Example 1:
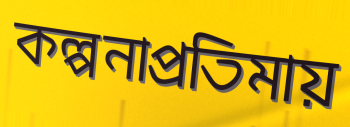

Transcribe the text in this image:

কল্পনাপ্রতিমায়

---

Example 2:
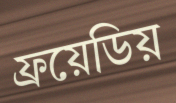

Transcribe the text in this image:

ফ্রয়েডিয়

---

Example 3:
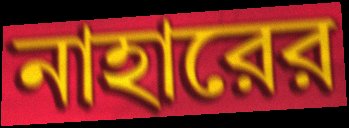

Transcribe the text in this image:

নাহারের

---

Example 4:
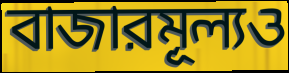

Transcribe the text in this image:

বাজারমূল্যও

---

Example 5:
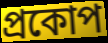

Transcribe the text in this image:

প্রকোপ